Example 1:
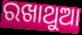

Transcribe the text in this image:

ରଖାଥୁଆ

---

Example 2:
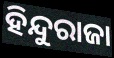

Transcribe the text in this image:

ହିନ୍ଦୁରାଜା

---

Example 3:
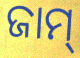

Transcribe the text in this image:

ଜାମ୍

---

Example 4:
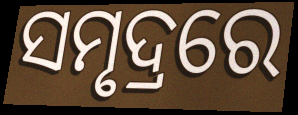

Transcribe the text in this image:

ସମୃଦ୍ରରେ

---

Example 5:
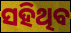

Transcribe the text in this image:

ସହିଥିବ